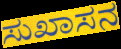
ಸುಖಾಸನ